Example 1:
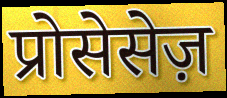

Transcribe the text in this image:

प्रोसेसेज़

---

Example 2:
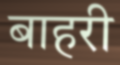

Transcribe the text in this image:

बाहरी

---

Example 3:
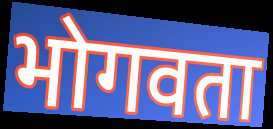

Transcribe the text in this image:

भोगवता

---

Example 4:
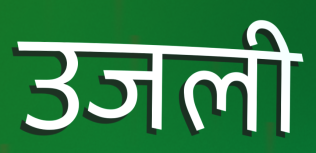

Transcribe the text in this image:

उजली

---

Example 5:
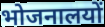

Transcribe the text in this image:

भोजनालयों